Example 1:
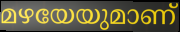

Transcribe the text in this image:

മഴയേയുമാണ്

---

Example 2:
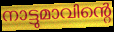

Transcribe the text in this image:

നാട്ടുമാവിന്റെ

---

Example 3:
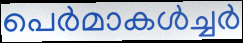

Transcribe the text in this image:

പെർമാകൾച്ചർ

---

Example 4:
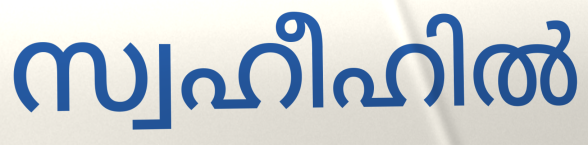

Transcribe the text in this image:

സ്വഹീഹിൽ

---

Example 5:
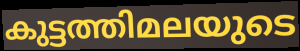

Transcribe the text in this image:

കുട്ടത്തിമലയുടെ